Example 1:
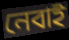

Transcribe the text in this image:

নেবাই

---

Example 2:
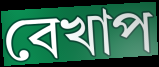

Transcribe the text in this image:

বেখাপ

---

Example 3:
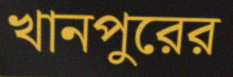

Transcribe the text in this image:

খানপুরের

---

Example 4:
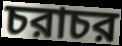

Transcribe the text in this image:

চরাচর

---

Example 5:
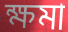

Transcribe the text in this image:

ক্ষমা